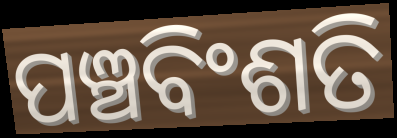
ପଞ୍ଚବିଂଶତି